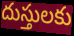
దుస్తులకు